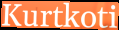
Kurtkoti